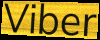
Viber